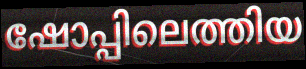
ഷോപ്പിലെത്തിയ